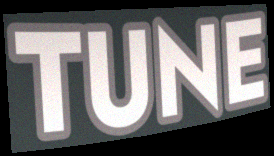
TUNE